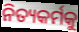
ନିତ୍ୟକର୍ମକୁ